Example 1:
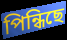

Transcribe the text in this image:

পিন্ধিছে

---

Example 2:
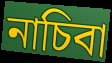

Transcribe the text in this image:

নাচিবা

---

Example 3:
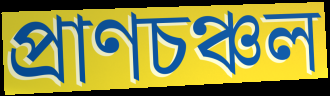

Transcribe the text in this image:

প্ৰাণচঞ্চল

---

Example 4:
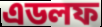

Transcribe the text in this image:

এডলফ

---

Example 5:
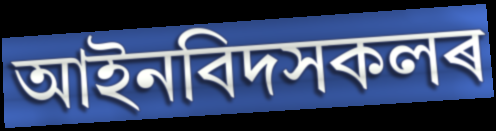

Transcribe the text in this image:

আইনবিদসকলৰ